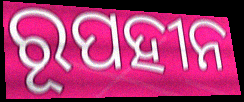
ରୂପହୀନ